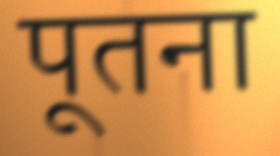
पूतना